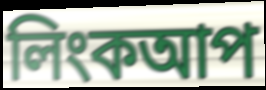
লিংকআপ